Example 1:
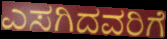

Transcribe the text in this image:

ಎಸಗಿದವರಿಗೆ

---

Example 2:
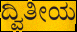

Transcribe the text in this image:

ದ್ವಿತೀಯ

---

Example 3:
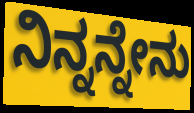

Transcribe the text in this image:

ನಿನ್ನನ್ನೇನು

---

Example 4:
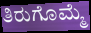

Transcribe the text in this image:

ತಿರುಗೊಮ್ಮೆ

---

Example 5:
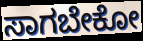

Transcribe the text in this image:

ಸಾಗಬೇಕೋ